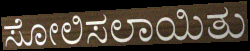
ಸೋಲಿಸಲಾಯಿತು